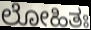
ಲೋಹಿತಃ